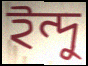
ইন্দু